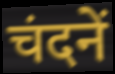
चंदनें